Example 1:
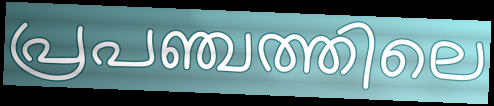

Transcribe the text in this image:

പ്രപഞ്ചത്തിലെ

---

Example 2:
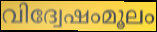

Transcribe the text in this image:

വിദ്വേഷംമൂലം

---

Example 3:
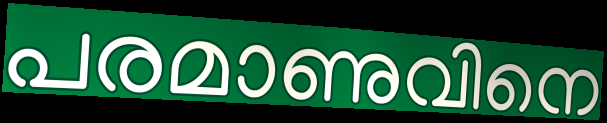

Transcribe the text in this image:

പരമാണുവിനെ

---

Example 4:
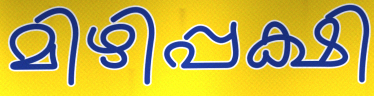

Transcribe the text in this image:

മിഴിപ്പക്ഷി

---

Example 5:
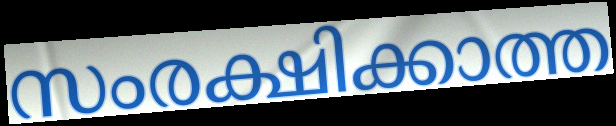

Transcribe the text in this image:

സംരക്ഷിക്കാത്ത